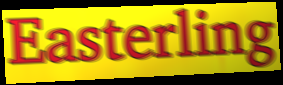
Easterling